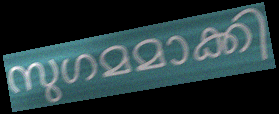
സുഗമമാക്കി